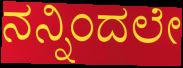
ನನ್ನಿಂದಲೇ